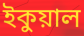
ইকুয়াল